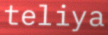
teliya